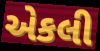
એકલી